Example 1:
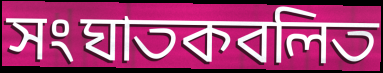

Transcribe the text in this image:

সংঘাতকবলিত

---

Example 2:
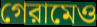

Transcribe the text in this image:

গেরামেও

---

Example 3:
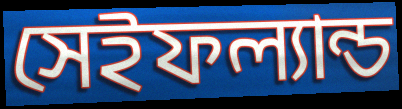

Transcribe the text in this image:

সেইফল্যান্ড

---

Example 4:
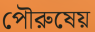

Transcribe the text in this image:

পৌরুষেয়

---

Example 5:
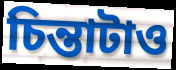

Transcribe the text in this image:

চিন্তাটাও